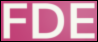
FDE